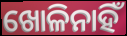
ଖୋଳିନାହିଁ